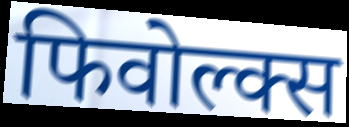
फिवोल्क्स